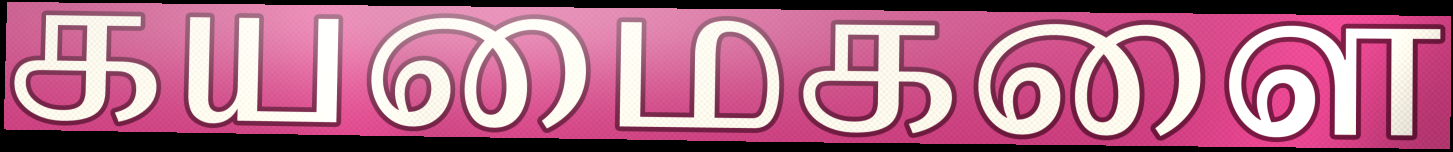
கயமைகளை